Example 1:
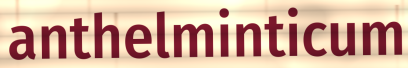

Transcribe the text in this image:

anthelminticum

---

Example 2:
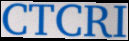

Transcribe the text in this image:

CTCRI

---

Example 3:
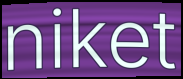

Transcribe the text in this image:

niket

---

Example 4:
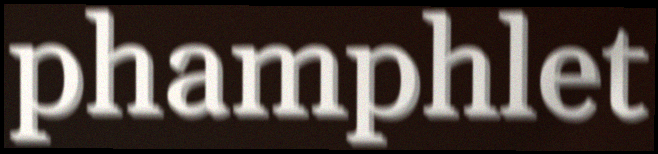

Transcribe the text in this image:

phamphlet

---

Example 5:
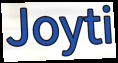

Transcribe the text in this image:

Joyti